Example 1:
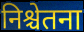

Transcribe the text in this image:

निश्चेतना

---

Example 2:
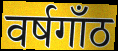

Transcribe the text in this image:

वर्षगाँठ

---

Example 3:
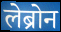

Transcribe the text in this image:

लेब्रोन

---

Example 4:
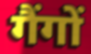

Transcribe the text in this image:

गैंगों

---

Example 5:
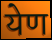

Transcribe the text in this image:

येण